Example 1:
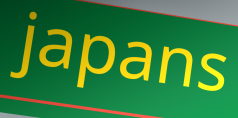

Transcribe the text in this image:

japans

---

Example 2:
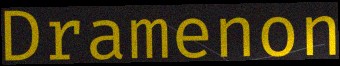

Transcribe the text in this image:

Dramenon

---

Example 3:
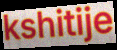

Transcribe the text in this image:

kshitije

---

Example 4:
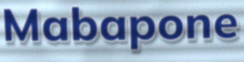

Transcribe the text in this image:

Mabapone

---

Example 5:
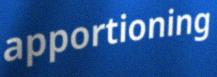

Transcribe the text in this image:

apportioning